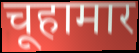
चूहामार